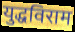
युद्धविराम